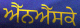
ਐੱਨਐੱਸਕੇ